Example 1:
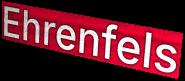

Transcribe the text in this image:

Ehrenfels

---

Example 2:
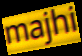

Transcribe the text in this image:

majhi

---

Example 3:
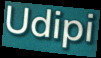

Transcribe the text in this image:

Udipi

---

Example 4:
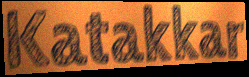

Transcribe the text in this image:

Katakkar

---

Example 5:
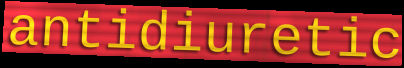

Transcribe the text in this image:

antidiuretic